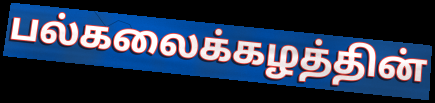
பல்கலைக்கழத்தின்